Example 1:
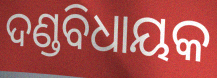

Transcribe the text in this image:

ଦଣ୍ଡବିଧାୟକ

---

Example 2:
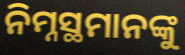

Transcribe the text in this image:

ନିମ୍ନସ୍ଥମାନଙ୍କୁ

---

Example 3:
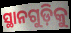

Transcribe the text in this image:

ସ୍ଥାନଗୁଡ଼ିକୁ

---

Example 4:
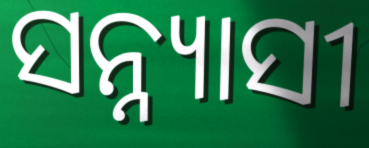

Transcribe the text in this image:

ସନ୍ନ୍ୟାସୀ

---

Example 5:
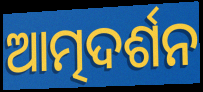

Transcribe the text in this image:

ଆତ୍ମଦର୍ଶନ